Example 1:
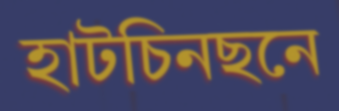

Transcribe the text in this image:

হাটচিনছনে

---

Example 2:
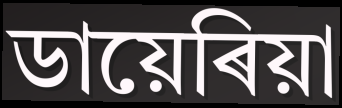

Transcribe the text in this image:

ডায়েৰিয়া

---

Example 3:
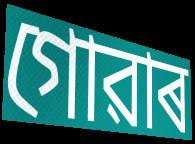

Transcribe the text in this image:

গোৱাৰ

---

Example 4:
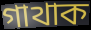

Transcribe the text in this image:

গাথাক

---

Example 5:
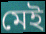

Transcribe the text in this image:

মেই